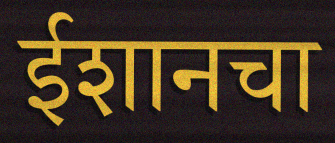
ईशानचा